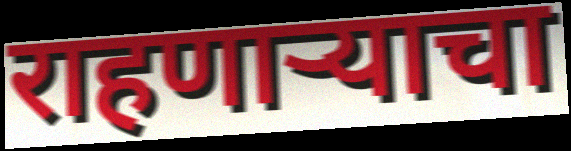
राहणाऱ्याचा